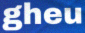
gheu